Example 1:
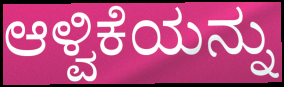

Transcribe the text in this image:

ಆಳ್ವಿಕೆಯನ್ನು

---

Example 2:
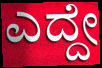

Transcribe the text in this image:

ಎದ್ದೇ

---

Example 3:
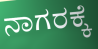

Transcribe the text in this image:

ನಾಗರಕ್ಕೆ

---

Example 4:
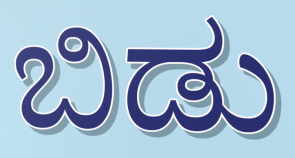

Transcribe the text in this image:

ಬಿಡು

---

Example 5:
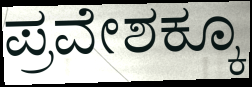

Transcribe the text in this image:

ಪ್ರವೇಶಕ್ಕೂ